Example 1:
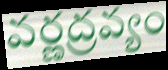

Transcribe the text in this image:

వర్ణద్రవ్యం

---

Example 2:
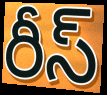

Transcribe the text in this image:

రీస్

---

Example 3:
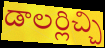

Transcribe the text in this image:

డాలర్లిచ్చి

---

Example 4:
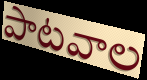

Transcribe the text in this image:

పాటవాల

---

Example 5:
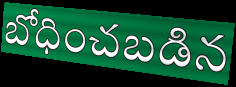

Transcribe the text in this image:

బోధించబడిన